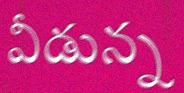
వీడున్న